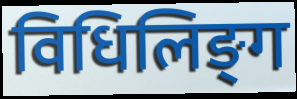
विधिलिङ्ग